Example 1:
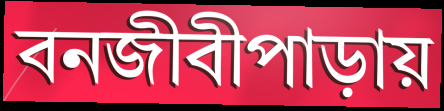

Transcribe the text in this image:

বনজীবীপাড়ায়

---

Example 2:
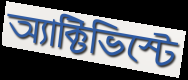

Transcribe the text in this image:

অ্যাক্টিভিস্টে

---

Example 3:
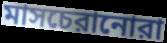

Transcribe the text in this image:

মাসচেরানোরা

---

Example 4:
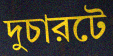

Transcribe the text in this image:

দুচারটে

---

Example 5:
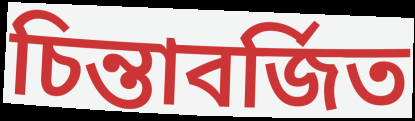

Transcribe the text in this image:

চিন্তাবর্জিত